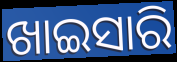
ଖାଇସାରି